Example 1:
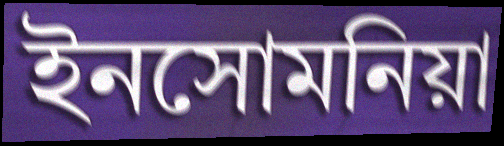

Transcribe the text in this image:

ইনসোমনিয়া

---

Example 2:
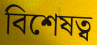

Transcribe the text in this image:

বিশেষত্ব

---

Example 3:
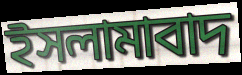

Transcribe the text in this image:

ইসলামাবাদ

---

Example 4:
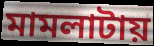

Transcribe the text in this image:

মামলাটায়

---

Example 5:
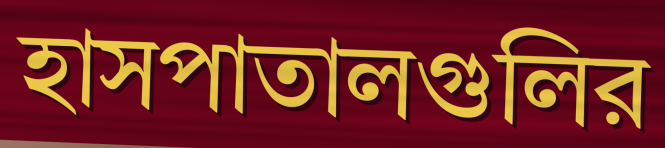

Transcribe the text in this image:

হাসপাতালগুলির